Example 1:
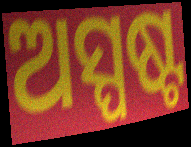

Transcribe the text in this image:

ଅସ୍ପଷ୍ଟ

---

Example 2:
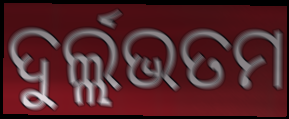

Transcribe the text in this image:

ଦୁର୍ଲ୍ଲଭତମ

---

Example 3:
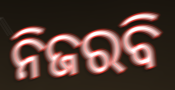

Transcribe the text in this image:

ନିଜରବି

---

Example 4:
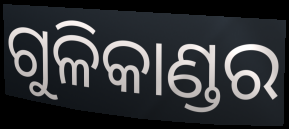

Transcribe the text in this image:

ଗୁଳିକାଣ୍ଡର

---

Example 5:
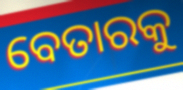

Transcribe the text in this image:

ବେତାରକୁ